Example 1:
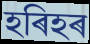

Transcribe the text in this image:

হৰিহৰ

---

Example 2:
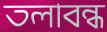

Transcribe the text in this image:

তলাবন্ধ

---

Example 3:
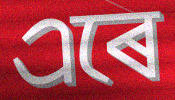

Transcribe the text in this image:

এৰে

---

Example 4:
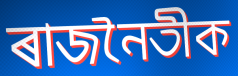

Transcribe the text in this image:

ৰাজনৈতীক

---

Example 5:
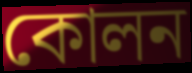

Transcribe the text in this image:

কোলন